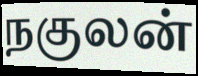
நகுலன்